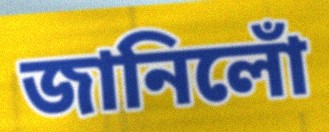
জানিলোঁ